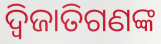
ଦ୍ୱିଜାତିଗଣଙ୍କ